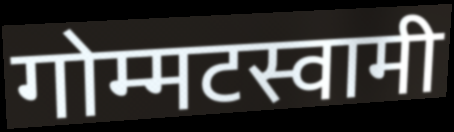
गोम्मटस्वामी